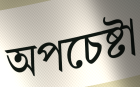
অপচেষ্টা